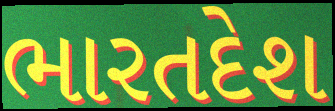
ભારતદેશ